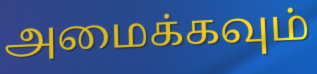
அமைக்கவும்